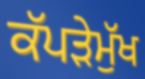
ਕੱਪੜੇਮੁੱਖ